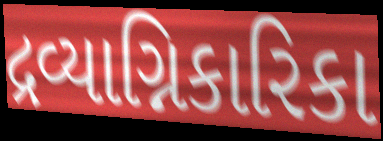
દ્રવ્યાગ્નિકારિકા